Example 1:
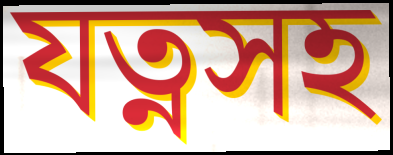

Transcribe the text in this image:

যত্নসহ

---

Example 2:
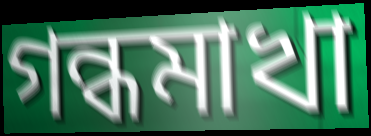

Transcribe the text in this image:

গন্ধমাখা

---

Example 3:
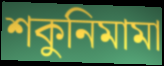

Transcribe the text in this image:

শকুনিমামা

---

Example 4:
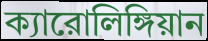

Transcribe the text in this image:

ক্যারোলিঙ্গিয়ান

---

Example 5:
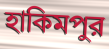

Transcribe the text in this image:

হাকিমপুর